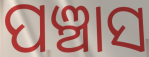
ପଞ୍ଚାସ